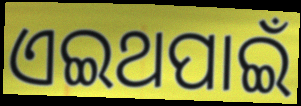
ଏଇଥପାଇଁ